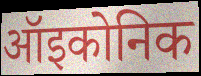
ऑइकोनिक